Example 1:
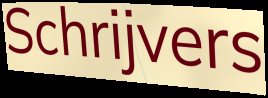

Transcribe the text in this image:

Schrijvers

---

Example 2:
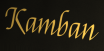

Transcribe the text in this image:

Kamban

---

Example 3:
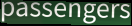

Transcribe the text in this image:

passengers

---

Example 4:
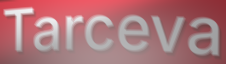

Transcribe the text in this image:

Tarceva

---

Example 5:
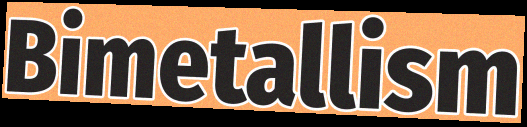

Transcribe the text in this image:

Bimetallism